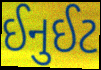
ઈનુઈટ